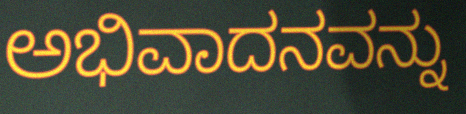
ಅಭಿವಾದನವನ್ನು